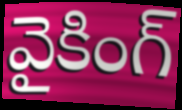
వైకింగ్